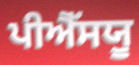
ਪੀਐੱਸਯੂ